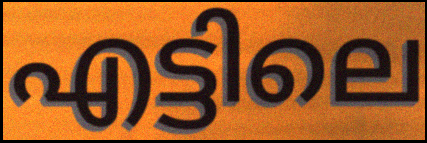
എട്ടിലെ